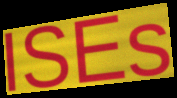
ISEs